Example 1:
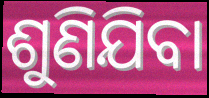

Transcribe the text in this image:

ଶୁଣିଯିବା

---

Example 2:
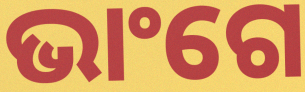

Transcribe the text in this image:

ଭାଂଗେ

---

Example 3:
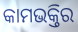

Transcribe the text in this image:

କାମଭକ୍ତିର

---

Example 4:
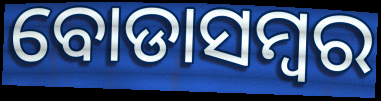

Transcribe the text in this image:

ବୋଡାସମ୍ବର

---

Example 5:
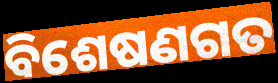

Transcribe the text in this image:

ବିଶେଷଣଗତ